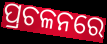
ପ୍ରଚଳନରେ